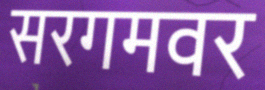
सरगमवर